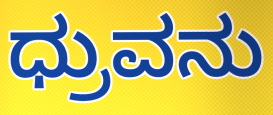
ಧ್ರುವನು